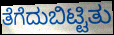
ತೆಗೆದುಬಿಟ್ಟಿತು